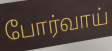
போர்வாய்